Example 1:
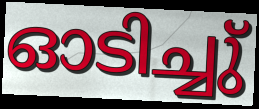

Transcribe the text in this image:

ഓടിച്ചു്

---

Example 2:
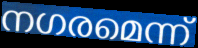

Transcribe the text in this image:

നഗരമെന്ന്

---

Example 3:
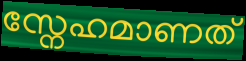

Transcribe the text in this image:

സ്നേഹമാണത്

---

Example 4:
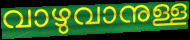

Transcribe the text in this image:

വാഴുവാനുള്ള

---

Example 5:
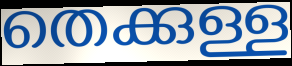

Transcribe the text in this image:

തെക്കുള്ള